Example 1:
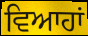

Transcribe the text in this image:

ਵਿਆਹਾਂ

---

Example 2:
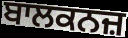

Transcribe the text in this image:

ਬਾਲਕਨਜ਼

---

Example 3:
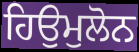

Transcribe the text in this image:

ਹਿਉਮੁਲੋਨ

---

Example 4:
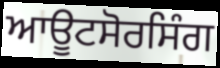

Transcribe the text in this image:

ਆਊਟਸੋਰਸਿੰਗ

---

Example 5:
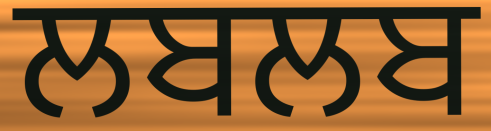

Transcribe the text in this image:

ਲਬਲਬ